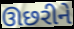
ઊછરીને